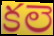
కలె